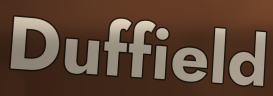
Duffield